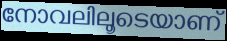
നോവലിലൂടെയാണ്